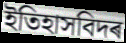
ইতিহাসবিদৰ